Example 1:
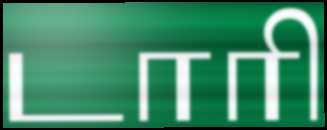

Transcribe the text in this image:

டாரி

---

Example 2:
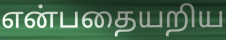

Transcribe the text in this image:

என்பதையறிய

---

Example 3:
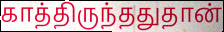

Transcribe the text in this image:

காத்திருந்ததுதான்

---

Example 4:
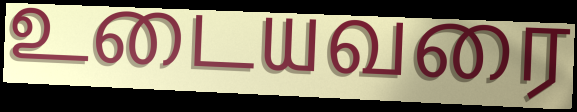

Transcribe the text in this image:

உடையவரை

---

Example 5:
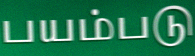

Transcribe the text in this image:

பயம்படு